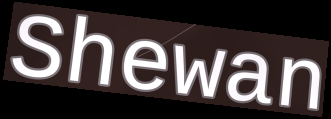
Shewan